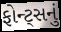
ફોન્ટ્સનું